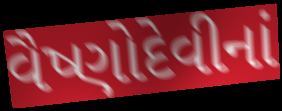
વૈષ્ણોદેવીનાં